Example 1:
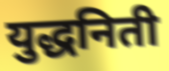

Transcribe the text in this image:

युद्धनिती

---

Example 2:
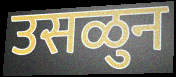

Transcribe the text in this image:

उसळुन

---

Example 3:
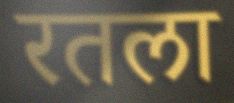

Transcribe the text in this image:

रतला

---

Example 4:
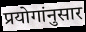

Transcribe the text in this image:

प्रयोगांनुसार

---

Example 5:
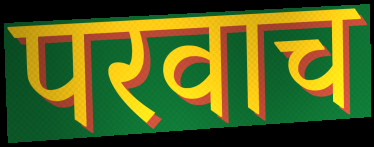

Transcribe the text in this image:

परवाच